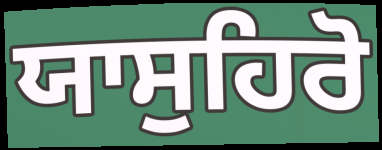
ਯਾਸੁਹਿਰੋ